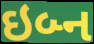
ઇબ્ન